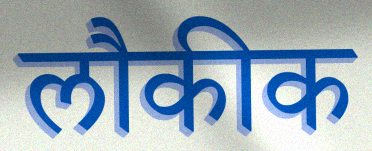
लौकीक